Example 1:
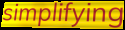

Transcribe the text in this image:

simplifying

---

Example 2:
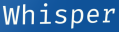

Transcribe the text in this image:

Whisper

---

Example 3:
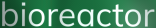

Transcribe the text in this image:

bioreactor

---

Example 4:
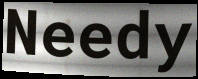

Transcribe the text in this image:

Needy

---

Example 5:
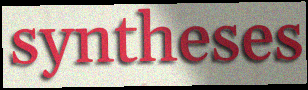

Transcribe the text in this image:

syntheses